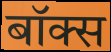
बॉक्‍स